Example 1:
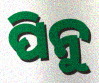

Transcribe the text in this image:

ପିନୁ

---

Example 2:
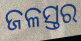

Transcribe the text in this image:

ଜଳସ୍ତର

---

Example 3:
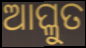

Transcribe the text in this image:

ଆପ୍ଳୁତ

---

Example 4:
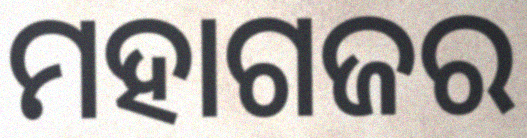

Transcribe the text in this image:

ମହାଗଜର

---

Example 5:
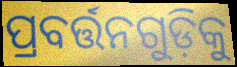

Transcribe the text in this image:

ପ୍ରବର୍ତ୍ତନଗୁଡ଼ିକୁ